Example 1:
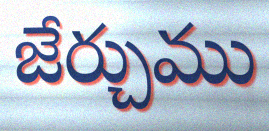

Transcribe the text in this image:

జేర్చుము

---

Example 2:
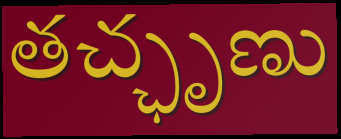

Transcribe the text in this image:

తచ్ఛృణు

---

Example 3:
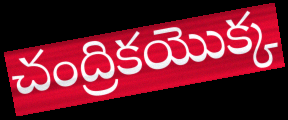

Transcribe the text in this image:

చంద్రికయొక్క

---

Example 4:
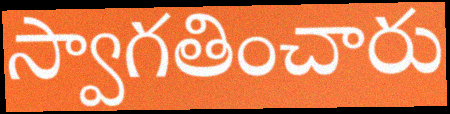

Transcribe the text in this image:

స్వాగతించారు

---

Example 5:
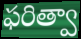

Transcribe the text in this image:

ఫరిత్వా